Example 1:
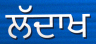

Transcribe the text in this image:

ਲੱਦਾਖ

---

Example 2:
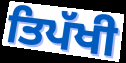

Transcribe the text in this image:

ਤਿਪੱਖੀ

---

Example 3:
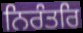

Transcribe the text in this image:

ਨਿਰੰਤਰਿ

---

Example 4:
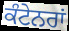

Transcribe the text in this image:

ਕੰਟੇਨਰਾਂ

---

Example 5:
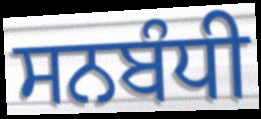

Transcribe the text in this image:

ਸਨਬੰਧੀ